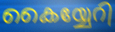
കൈയ്യേറി